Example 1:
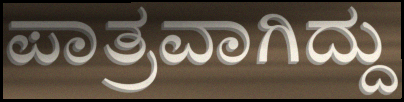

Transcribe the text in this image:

ಪಾತ್ರವಾಗಿದ್ದು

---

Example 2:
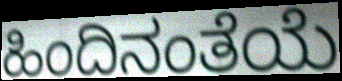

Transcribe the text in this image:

ಹಿಂದಿನಂತೆಯೆ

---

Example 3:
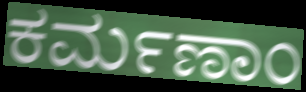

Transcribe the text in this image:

ಕರ್ಮಣಾಂ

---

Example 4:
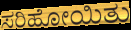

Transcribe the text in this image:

ಸರಿಹೋಯಿತು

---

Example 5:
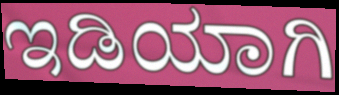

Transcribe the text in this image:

ಇಡಿಯಾಗಿ